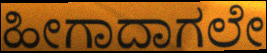
ಹೀಗಾದಾಗಲೇ